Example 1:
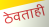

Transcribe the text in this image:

ठेवताही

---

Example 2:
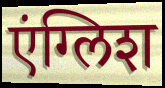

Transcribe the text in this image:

एंग्लिश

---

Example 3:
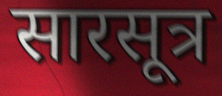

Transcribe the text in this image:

सारसूत्र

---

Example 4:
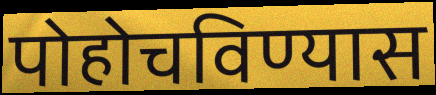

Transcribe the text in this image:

पोहोचविण्यास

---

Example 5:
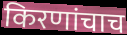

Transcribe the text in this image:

किरणांचाच